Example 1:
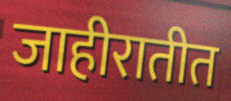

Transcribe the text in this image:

जाहीरातीत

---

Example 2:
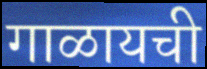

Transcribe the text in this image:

गाळायची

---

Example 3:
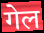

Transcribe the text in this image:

गेल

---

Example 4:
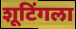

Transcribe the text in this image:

शूटिंगला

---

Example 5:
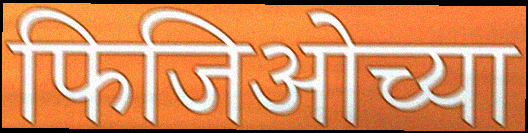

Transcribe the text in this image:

फिजिओच्या